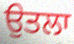
ਉਤਲਾ